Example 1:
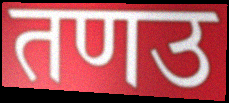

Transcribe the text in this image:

तणउ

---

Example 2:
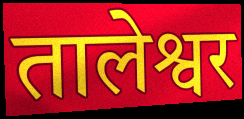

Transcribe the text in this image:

तालेश्वर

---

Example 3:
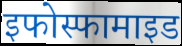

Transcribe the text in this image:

इफोस्फामाइड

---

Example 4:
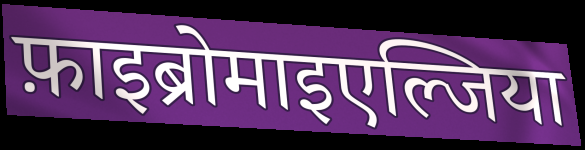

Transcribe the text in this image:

फ़ाइब्रोमाइएल्जिया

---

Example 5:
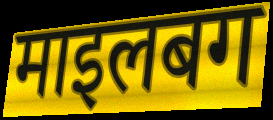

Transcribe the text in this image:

माइलबग